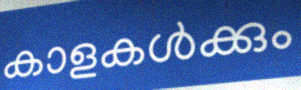
കാളകൾക്കും